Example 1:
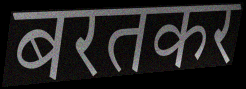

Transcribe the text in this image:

बरतकर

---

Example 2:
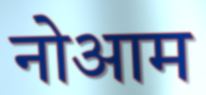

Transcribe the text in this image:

नोआम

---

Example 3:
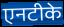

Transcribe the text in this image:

एनटीके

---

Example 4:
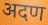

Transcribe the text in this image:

अदण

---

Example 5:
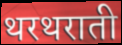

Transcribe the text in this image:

थरथराती